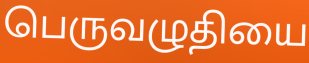
பெருவழுதியை